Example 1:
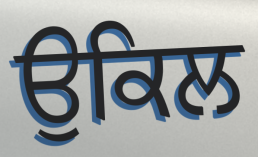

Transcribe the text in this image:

ਉਕਿਲ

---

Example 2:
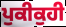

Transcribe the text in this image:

ਪੁਕੀਕੁਹੀ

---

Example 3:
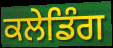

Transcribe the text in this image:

ਕਲੇਡਿੰਗ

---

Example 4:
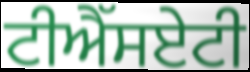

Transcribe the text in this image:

ਟੀਐੱਸਏਟੀ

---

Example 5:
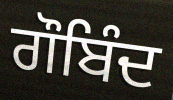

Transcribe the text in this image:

ਗੌਬਿੰਦ